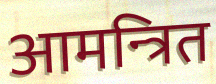
आमन्त्रित